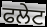
ਫਲੇਟ